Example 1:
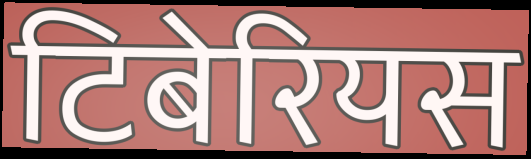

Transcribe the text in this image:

टिबेरियस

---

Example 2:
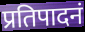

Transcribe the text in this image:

प्रतिपादनं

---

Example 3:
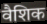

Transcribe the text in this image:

वैशिक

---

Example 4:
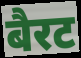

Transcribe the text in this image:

बैरट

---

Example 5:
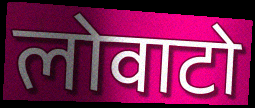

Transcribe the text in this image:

लोवाटो